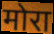
मोरा